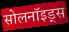
सोलनॉइड्स